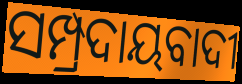
ସମ୍ପ୍ରଦାୟବାଦୀ